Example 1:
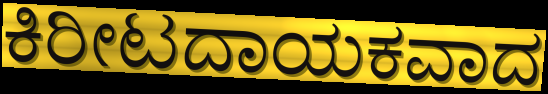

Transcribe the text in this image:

ಕಿರೀಟದಾಯಕವಾದ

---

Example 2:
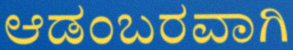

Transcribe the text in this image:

ಆಡಂಬರವಾಗಿ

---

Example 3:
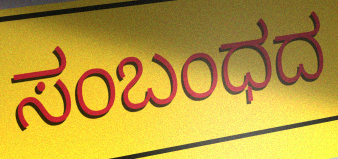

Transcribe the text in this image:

ಸಂಬಂಧದ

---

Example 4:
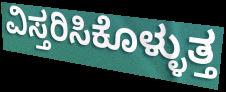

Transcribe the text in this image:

ವಿಸ್ತರಿಸಿಕೊಳ್ಳುತ್ತ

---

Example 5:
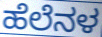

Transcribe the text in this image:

ಹೆಲೆನಳ